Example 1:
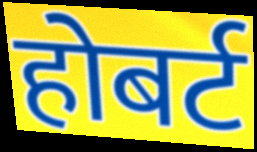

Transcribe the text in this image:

होबर्ट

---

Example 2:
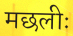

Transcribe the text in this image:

मछलीः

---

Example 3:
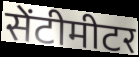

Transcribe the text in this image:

सेंटीमीटर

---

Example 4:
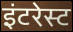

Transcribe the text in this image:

इंटरेस्ट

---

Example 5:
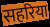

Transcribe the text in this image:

सहरिया